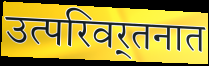
उत्परिवर्तनात